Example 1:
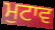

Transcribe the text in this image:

ਮੁਟਾਵ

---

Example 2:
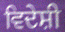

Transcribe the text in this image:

ਵਿਦੇਸ਼ੀ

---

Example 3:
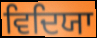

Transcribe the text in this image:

ਵਿਦਿਯਾ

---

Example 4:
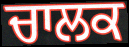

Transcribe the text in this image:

ਚਾਲਕ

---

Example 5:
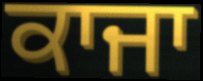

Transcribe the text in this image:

ਕਾਜਾ